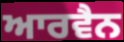
ਆਰਵੈਨ